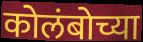
कोलंबोच्या